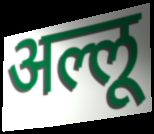
अल्लू